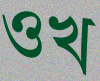
ওখ